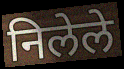
निलेले